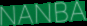
NANBA